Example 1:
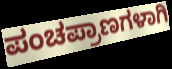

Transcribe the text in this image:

ಪಂಚಪ್ರಾಣಗಳಾಗಿ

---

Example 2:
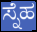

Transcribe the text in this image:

ಸ್ನೆಹ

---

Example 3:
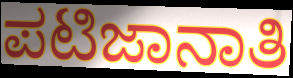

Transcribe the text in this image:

ಪಟಿಜಾನಾತಿ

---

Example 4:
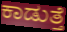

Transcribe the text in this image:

ಕಾಡುತ್ತೆ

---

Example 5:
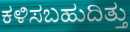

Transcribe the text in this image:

ಕಳಿಸಬಹುದಿತ್ತು